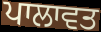
ਪਾਲਾਵਤ